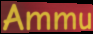
Ammu